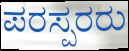
ಪರಸ್ಪರರು